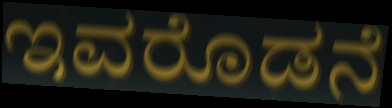
ಇವರೊಡನೆ